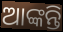
ଆଙ୍କନ୍ତି